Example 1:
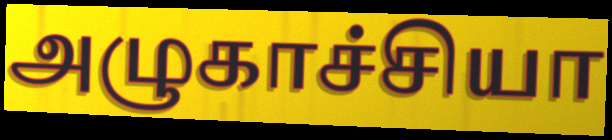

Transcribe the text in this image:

அழுகாச்சியா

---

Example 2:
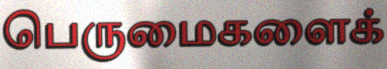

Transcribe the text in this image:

பெருமைகளைக்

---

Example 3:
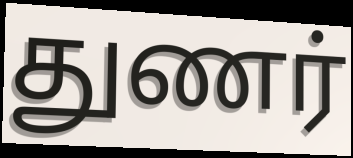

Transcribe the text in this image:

துணர்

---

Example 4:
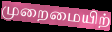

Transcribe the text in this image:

முறைமையிற்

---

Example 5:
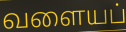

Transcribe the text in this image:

வளையப்